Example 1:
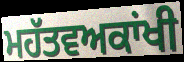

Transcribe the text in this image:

ਮਹੱਤਵਅਕਾਂਖੀ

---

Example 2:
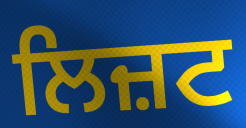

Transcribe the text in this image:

ਲਿਜ਼ਟ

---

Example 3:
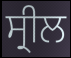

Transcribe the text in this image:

ਸ੍ਰੀਲ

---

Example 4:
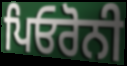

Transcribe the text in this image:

ਪਿਓਰੋਨੀ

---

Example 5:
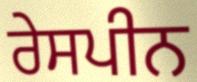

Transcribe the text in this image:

ਰੇਸਪੀਨ